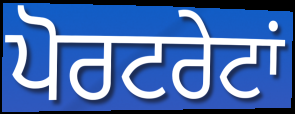
ਪੋਰਟਰੇਟਾਂ